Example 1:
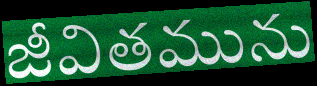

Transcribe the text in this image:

జీవితమును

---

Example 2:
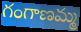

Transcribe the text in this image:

గంగాణమ్మ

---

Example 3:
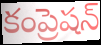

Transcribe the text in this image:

కంప్రెషన్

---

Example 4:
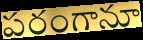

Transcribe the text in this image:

పరంగానూ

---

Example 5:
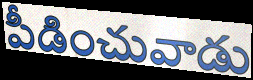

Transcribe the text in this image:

పీడించువాడు